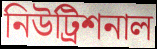
নিউট্রিশনাল